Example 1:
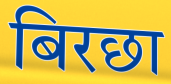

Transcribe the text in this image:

बिरछा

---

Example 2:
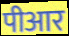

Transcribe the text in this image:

पीआर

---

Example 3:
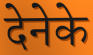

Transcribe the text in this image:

देनेके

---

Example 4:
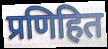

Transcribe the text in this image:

प्रणिहित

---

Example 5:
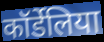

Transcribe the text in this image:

कॉर्डेलिया